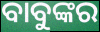
ବାବୁଙ୍କର